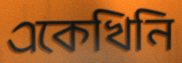
একেখিনি